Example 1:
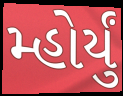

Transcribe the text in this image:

મ્હોર્યું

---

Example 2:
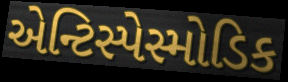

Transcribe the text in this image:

એન્ટિસ્પેસ્મોડિક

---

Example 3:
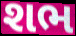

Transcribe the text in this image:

શભ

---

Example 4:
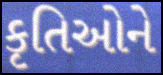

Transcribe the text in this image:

કૃતિઓને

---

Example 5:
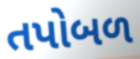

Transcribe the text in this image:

તપોબળ